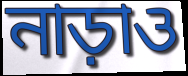
নাড়াও